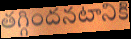
తగ్గిందనటానికి